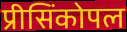
प्रीसिंकोपल